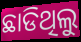
ଛାଡିଥିଲୁ